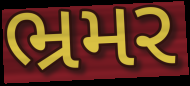
ભ્રમર